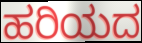
ಹರಿಯದ